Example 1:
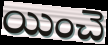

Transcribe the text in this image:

యించె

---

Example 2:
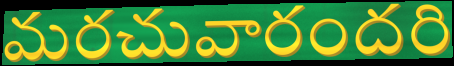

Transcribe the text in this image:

మరచువారందరి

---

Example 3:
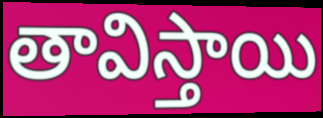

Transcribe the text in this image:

తావిస్తాయి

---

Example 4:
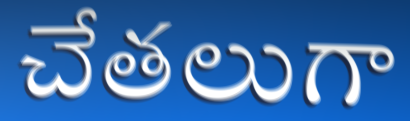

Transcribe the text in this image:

చేతలుగా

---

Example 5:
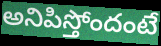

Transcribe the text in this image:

అనిపిస్తోందంటే